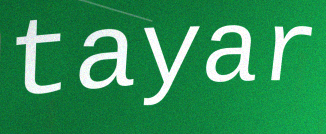
tayar